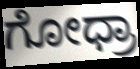
ಗೋಧ್ರಾ